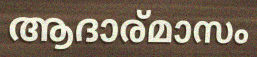
ആദാര്മാസം